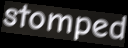
stomped